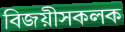
বিজয়ীসকলক